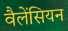
वैलेंसियन